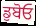
ਡੁਬੋਓ